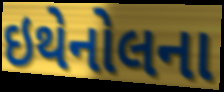
ઇથેનોલના